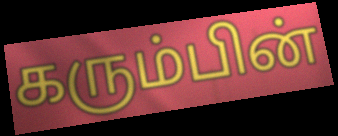
கரும்பின்